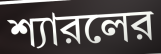
শ্যারলের